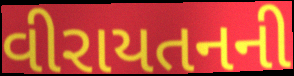
વીરાયતનની